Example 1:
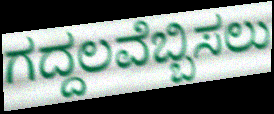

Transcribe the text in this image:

ಗದ್ದಲವೆಬ್ಬಿಸಲು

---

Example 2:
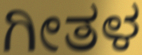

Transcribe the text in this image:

ಗೀತಳ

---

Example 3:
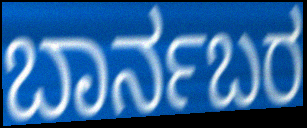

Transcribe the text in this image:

ಬಾರ್ನಬರ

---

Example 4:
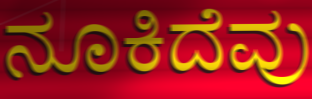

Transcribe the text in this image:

ನೂಕಿದೆವು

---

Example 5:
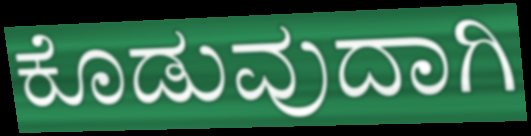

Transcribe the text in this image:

ಕೊಡುವುದಾಗಿ